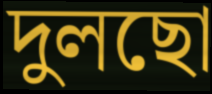
দুলছো